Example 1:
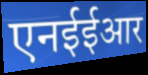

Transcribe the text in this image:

एनईईआर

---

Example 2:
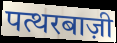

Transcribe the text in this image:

पत्थरबाज़ी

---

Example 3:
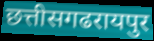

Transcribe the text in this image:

छत्तीसगढरायपुर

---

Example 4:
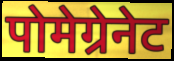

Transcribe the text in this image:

पोमेग्रेनेट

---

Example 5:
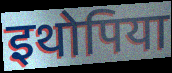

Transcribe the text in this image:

इथोपिया